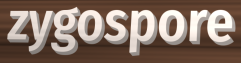
zygospore